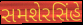
સમશેરસિંહે